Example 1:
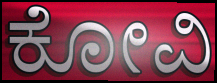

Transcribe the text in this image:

ಕೋವಿ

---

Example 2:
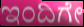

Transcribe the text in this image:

ಇಂದಿಗೇ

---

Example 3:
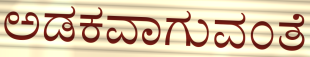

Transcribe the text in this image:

ಅಡಕವಾಗುವಂತೆ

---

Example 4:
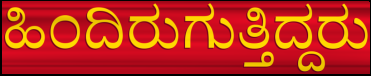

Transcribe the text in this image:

ಹಿಂದಿರುಗುತ್ತಿದ್ದರು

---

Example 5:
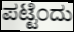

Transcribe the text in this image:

ಪಟ್ಟೆಂದು